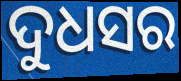
ଦୁଧସର